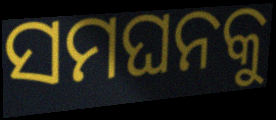
ସମଘନକୁ